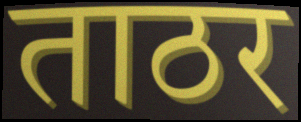
ताठर